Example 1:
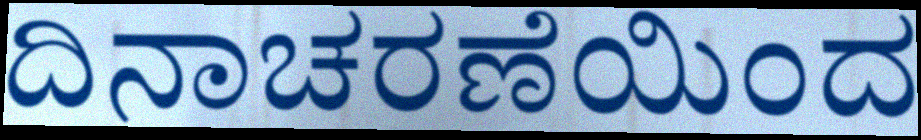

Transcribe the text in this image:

ದಿನಾಚರಣೆಯಿಂದ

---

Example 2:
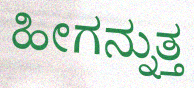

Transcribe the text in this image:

ಹೀಗನ್ನುತ್ತ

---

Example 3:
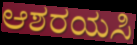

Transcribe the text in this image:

ಆಶರಯಸಿ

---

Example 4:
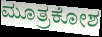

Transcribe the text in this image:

ಮೂತ್ರಕೋಶ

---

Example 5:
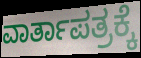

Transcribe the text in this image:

ವಾರ್ತಾಪತ್ರಕ್ಕೆ